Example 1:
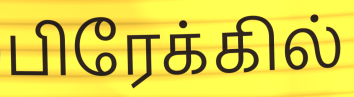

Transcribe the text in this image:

பிரேக்கில்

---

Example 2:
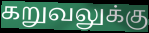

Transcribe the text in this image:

கறுவலுக்கு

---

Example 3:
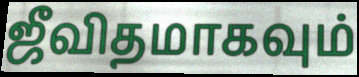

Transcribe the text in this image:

ஜீவிதமாகவும்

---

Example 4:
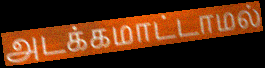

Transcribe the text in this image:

அடக்கமாட்டாமல்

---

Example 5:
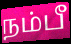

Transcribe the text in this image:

நம்பீ